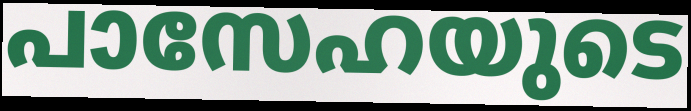
പാസേഹയുടെ